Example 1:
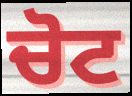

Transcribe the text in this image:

ਚੋਟ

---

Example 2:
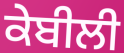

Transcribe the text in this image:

ਕੇਬੀਲੀ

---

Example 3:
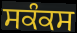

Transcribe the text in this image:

ਸਕੰਕਸ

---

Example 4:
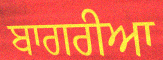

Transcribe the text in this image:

ਬਾਗਰੀਆ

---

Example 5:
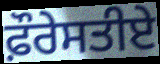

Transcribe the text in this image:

ਫ਼ੌਰੇਸਤੀਏ